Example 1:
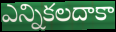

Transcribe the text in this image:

ఎన్నికలదాకా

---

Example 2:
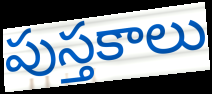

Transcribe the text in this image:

పుస్తకాలు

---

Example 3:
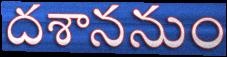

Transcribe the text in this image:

దశాననుం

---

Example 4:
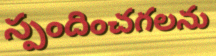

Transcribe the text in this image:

స్పందించగలను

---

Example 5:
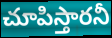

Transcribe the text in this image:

చూపిస్తారనీ